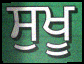
ਸੁਖੂ